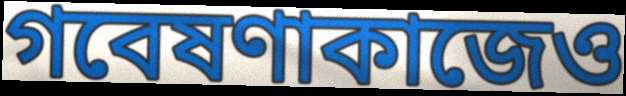
গবেষণাকাজেও